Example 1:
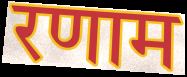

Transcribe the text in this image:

रणाम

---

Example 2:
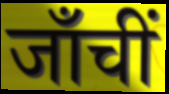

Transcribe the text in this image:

जाँचीं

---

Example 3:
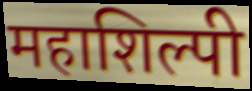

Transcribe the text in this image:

महाशिल्पी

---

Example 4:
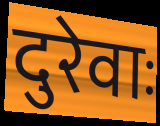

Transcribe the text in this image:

दुरेवाः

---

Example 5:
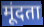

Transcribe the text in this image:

मूंदता